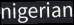
nigerian